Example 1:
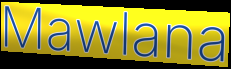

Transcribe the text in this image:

Mawlana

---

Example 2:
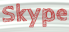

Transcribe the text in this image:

Skype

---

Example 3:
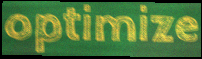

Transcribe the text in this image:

optimize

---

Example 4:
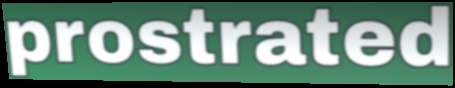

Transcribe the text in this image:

prostrated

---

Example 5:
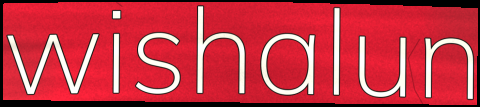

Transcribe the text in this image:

wishalun